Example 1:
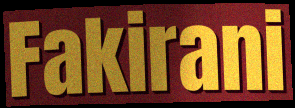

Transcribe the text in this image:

Fakirani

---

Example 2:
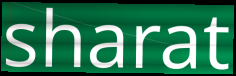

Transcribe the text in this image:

sharat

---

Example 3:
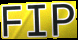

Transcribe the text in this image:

FIP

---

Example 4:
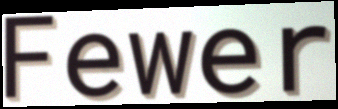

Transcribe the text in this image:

Fewer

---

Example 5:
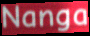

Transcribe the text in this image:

Nanga